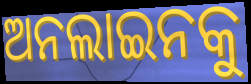
ଅନଲାଇନକୁ